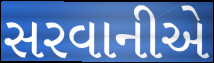
સરવાનીએ